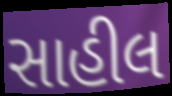
સાહીલ